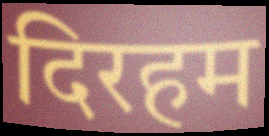
दिरहम